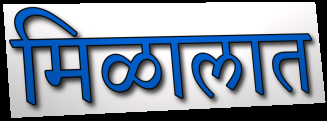
मिळालात